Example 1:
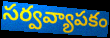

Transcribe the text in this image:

సర్వవ్యాపకం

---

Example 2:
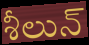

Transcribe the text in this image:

శీలున్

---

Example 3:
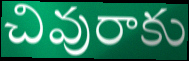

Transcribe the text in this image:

చివురాకు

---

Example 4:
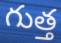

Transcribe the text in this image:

గుత్త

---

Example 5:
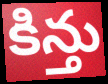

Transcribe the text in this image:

కిన్తు